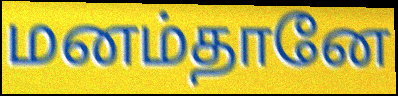
மனம்தானே